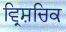
ਵ੍ਰਿਸ਼ਚਿਕ